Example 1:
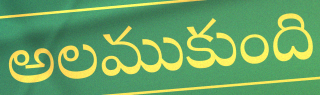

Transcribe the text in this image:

అలముకుంది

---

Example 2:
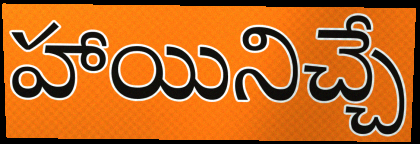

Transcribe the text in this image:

హాయినిచ్చే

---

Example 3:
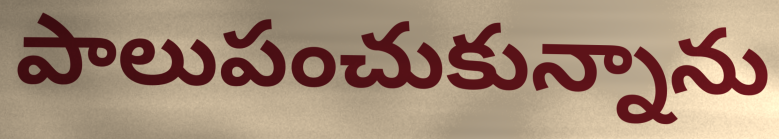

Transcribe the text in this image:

పాలుపంచుకున్నాను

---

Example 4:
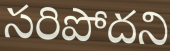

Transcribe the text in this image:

సరిపోదని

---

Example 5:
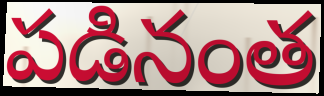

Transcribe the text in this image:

పడినంత